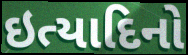
ઇત્યાદિનો